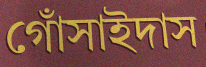
গোঁসাইদাস